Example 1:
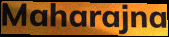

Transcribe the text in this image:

Maharajna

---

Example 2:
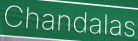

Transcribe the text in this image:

Chandalas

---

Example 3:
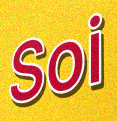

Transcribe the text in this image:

Soi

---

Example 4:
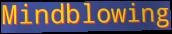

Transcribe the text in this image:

Mindblowing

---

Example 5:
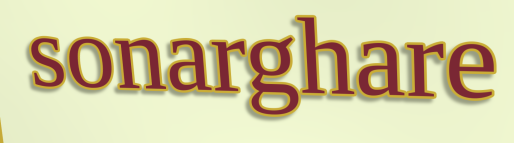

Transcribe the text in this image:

sonarghare